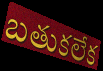
బతుకలేక